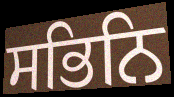
ਸਭਿਨਿ